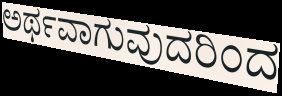
ಅರ್ಥವಾಗುವುದರಿಂದ